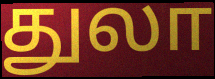
துலா